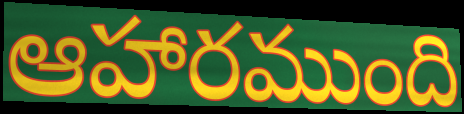
ఆహారముంది